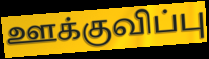
ஊக்குவிப்பு